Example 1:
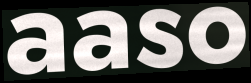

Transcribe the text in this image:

aaso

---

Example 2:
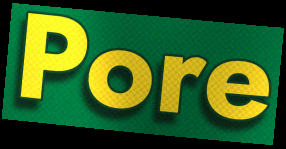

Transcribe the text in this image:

Pore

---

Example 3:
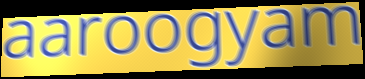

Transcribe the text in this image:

aaroogyam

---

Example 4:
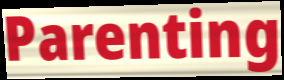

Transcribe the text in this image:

Parenting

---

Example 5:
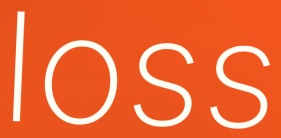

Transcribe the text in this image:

loss